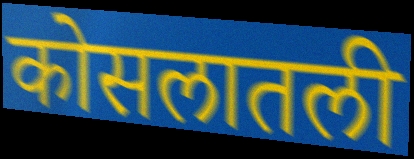
कोसलातली